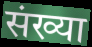
संख्या